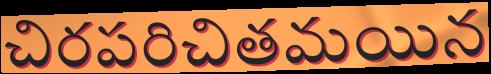
చిరపరిచితమయిన